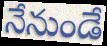
నేనుండే